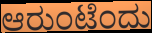
ಆರುಂಟೆಂದು